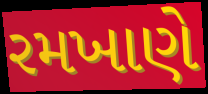
રમખાણે